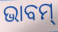
ଭାବମ୍